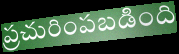
ప్రచురింపబడింది